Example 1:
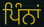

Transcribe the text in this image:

ਪਿੰਨਾਂ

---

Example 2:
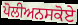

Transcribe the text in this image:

ਪੋਲੀਅਨਸਕੋਏ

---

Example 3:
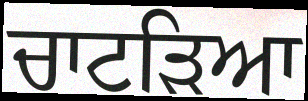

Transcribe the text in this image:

ਚਾਟੜਿਆ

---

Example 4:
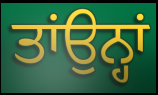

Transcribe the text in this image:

ਤਾਂਉਨ੍ਹਾਂ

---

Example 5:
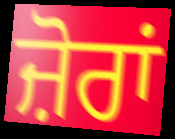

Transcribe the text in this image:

ਜ਼ੋਰਾਂ